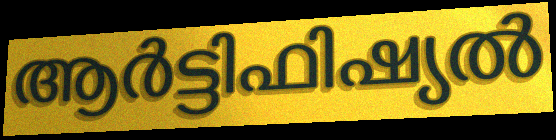
ആർട്ടിഫിഷ്യൽ